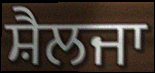
ਸ਼ੈਲਜਾ